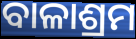
ବାଳାଶ୍ରମ